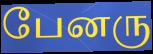
பேனரு